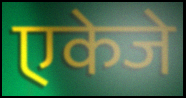
एकेजे